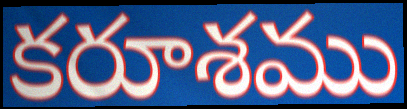
కరూశము